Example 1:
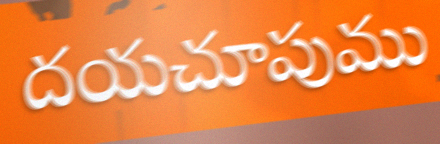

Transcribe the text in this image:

దయచూపుము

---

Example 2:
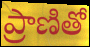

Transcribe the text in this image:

ప్రాణితో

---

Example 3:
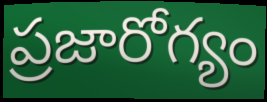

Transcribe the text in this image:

ప్రజారోగ్యం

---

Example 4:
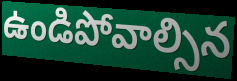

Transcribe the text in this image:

ఉండిపోవాల్సిన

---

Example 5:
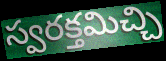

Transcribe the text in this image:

స్వరక్తమిచ్చి